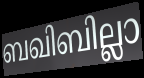
ബഖിബില്ലാ